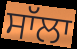
ਸਾੱਲਾ